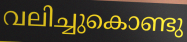
വലിച്ചുകൊണ്ടു